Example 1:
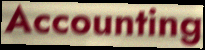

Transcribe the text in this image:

Accounting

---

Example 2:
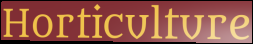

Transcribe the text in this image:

Horticulture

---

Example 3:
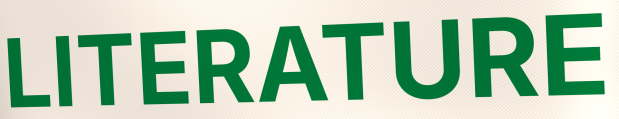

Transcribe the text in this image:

LITERATURE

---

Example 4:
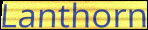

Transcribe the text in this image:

Lanthorn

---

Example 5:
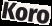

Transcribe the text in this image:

Koro